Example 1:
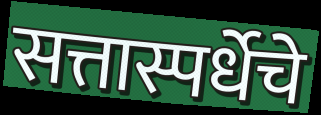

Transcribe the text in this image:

सत्तास्पर्धेचे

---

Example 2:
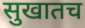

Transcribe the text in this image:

सुखातच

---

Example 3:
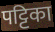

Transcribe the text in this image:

पट्टिका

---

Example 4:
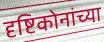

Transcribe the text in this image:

दृष्टिकोनांच्या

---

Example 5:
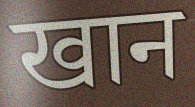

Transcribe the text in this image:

खान